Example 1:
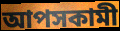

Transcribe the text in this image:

আপসকামী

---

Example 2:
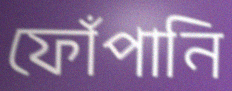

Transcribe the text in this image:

ফোঁপানি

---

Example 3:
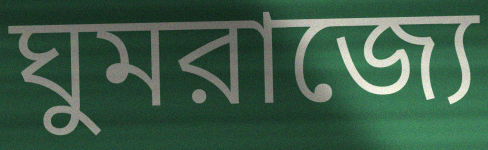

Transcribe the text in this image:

ঘুমরাজ্যে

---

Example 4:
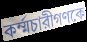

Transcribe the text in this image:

কর্ম্মচারীগণকে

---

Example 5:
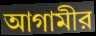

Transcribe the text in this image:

আগামীর